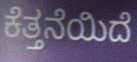
ಕೆತ್ತನೆಯಿದೆ